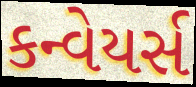
કન્વેયર્સ